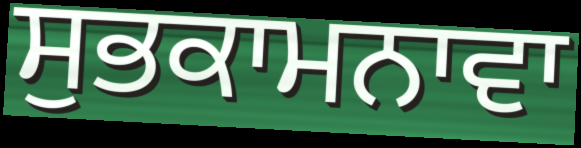
ਸੁਭਕਾਮਨਾਵਾ